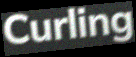
Curling